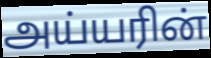
அய்யரின்